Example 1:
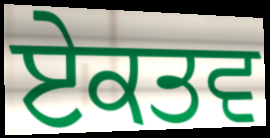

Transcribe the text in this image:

ਏਕਤਵ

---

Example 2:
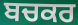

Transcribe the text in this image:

ਬਚਕਰ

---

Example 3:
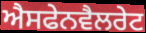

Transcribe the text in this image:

ਐਸਫੇਨਵੈਲਰੇਟ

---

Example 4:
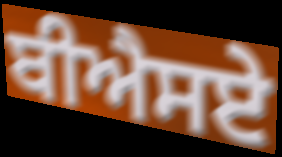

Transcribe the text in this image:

ਬੀਐਸਏ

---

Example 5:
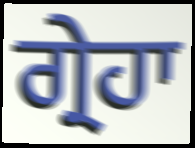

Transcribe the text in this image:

ਗ੍ਰੇਹਾ